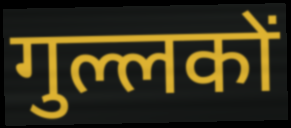
गुल्लकों